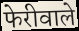
फेरीवाले